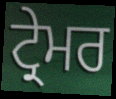
ਟ੍ਰੇਮਰ